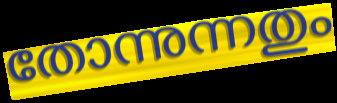
തോന്നുന്നതും